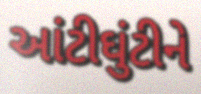
આંટીઘુંટીને